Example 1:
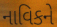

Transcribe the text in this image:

નાવિકને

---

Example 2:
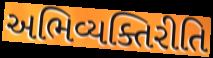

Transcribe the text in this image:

અભિવ્યક્તિરીતિ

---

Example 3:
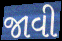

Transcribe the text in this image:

જાવી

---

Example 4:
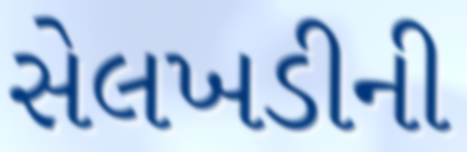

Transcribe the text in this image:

સેલખડીની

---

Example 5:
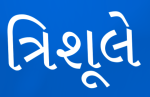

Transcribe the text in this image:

ત્રિશૂલે